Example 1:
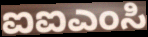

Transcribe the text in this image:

ಐಐಎಂಸಿ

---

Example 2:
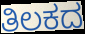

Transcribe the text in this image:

ತಿಲಕದ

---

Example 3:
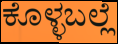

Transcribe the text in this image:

ಕೊಳ್ಳಬಲ್ಲೆ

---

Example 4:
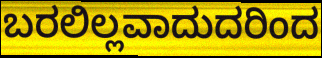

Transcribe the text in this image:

ಬರಲಿಲ್ಲವಾದುದರಿಂದ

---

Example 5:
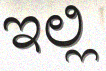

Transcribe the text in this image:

ಇಲ್ಲಿ